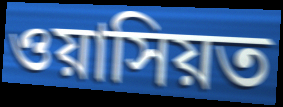
ওয়াসিয়ত